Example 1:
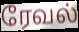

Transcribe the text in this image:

ரேவல்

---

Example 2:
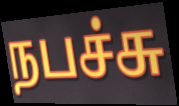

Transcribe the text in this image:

நபச்சு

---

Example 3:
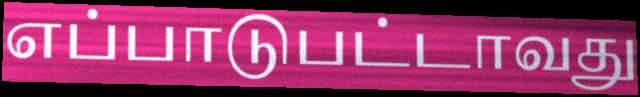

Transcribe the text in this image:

எப்பாடுபட்டாவது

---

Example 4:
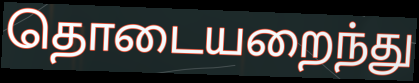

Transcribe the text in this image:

தொடையறைந்து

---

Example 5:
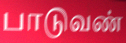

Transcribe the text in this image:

பாடுவண்